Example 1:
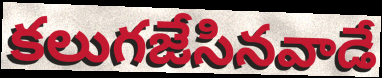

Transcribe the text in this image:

కలుగజేసినవాడే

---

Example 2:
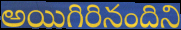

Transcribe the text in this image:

అయిగిరినందిని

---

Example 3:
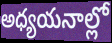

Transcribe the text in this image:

అధ్యయనాల్లో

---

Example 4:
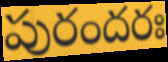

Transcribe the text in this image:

పురందరః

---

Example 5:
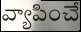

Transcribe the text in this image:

వ్యాపించే